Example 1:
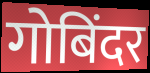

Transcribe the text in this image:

गोबिंदर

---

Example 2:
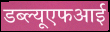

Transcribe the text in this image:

डब्ल्यूएफआई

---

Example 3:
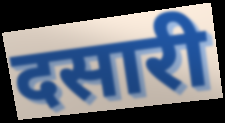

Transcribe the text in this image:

दसारी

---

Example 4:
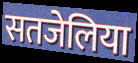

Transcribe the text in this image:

सतजेलिया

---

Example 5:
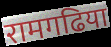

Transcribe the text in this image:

रामगढिया